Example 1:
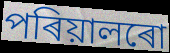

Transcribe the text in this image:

পৰিয়ালৰো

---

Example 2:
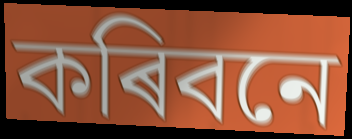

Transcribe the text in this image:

কৰিবনে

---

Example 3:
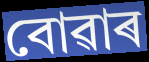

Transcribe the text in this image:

বোৱাৰ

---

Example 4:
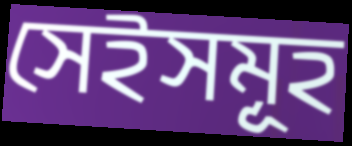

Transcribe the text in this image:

সেইসমূহ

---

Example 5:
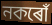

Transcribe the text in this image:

নকৰোঁ